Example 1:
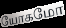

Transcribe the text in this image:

யோகமோ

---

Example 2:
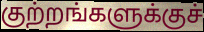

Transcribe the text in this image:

குற்றங்களுக்குச்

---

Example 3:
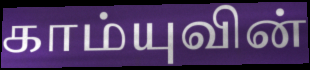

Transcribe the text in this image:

காம்யுவின்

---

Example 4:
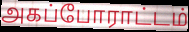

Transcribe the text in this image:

அகப்போராட்டம்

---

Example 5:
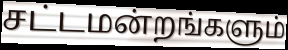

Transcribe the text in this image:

சட்டமன்றங்களும்